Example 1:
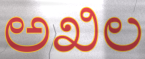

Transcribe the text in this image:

ಅಖಿಲ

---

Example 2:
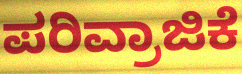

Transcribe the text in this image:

ಪರಿವ್ರಾಜಿಕೆ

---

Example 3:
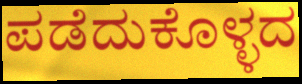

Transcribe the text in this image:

ಪಡೆದುಕೊಳ್ಳದ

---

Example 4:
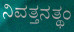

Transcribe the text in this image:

ನಿವತ್ತನತ್ಥಂ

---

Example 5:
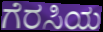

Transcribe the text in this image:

ಗೆರಸಿಯ